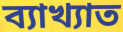
ব্যাখ্যাত